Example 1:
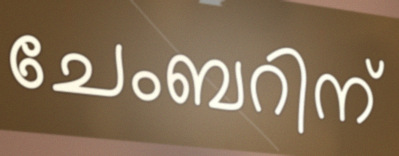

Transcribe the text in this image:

ചേംബറിന്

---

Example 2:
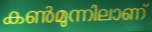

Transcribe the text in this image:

കൺമുന്നിലാണ്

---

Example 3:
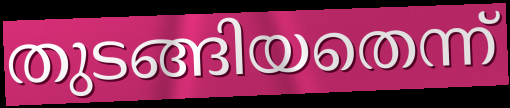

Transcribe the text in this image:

തുടങ്ങിയതെന്ന്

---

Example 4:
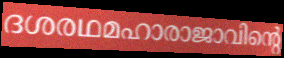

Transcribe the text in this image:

ദശരഥമഹാരാജാവിന്റെ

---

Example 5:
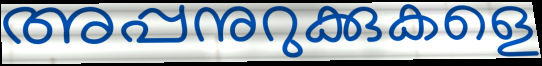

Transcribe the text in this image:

അപ്പനുറുക്കുകളെ